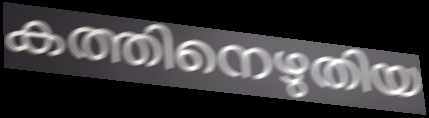
കത്തിനെഴുതിയ